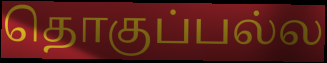
தொகுப்பல்ல